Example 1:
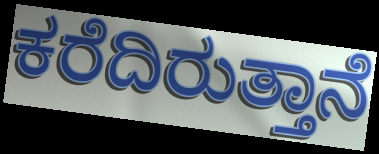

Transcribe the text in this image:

ಕರೆದಿರುತ್ತಾನೆ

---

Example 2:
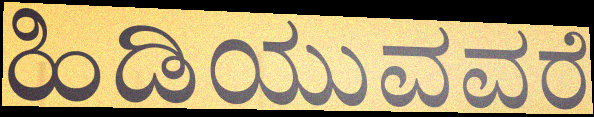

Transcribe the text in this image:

ಹಿಡಿಯುವವರೆ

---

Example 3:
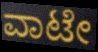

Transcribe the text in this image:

ವಾಟೇ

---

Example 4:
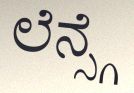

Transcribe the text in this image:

ಲೆನ್ಸ್ಗೆ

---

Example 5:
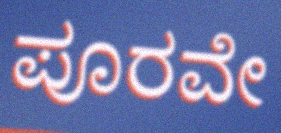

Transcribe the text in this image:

ಪೂರವೇ